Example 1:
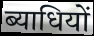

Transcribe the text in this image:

ब्याधियों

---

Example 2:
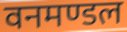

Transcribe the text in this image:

वनमण्डल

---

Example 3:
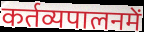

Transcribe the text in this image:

कर्तव्यपालनमें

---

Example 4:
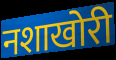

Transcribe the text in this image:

नशाखोरी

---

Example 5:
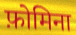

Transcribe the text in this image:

फ़ोमिना